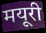
मयूरी